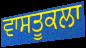
ਵਾਸਤੂਕਲਾ